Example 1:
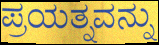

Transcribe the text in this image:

ಪ್ರಯತ್ನವನ್ನು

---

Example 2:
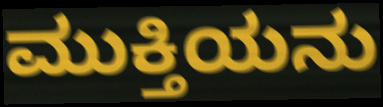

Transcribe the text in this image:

ಮುಕ್ತಿಯನು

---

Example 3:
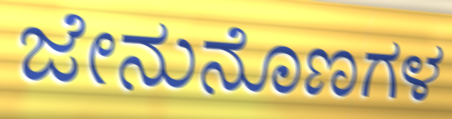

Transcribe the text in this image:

ಜೇನುನೊಣಗಳ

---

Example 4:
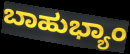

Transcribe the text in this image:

ಬಾಹುಭ್ಯಾಂ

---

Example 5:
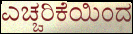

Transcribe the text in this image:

ಎಚ್ಚರಿಕೆಯಿಂದ